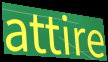
attire